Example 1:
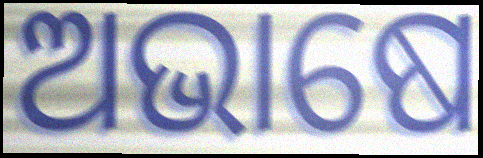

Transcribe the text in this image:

ଅଭାଷେ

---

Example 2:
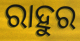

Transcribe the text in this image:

ରାହୁର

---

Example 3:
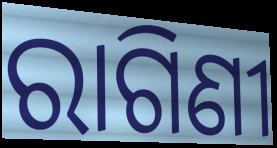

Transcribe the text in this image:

ରାଗିଣୀ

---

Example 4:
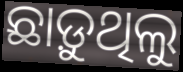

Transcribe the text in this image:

ଛାଡ଼ୁଥିଲୁ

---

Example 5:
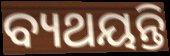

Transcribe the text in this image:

ବ୍ୟଥୟନ୍ତି